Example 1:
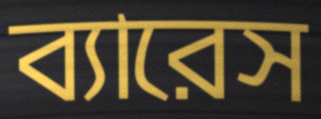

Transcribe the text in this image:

ব্যারেস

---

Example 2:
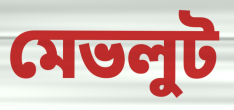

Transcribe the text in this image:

মেভলুট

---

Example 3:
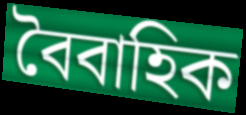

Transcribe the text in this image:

বৈবাহিক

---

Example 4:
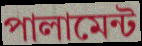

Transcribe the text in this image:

পালামেন্ট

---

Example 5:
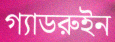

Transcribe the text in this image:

গ্যাডরুইন